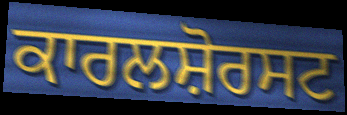
ਕਾਰਲਸ਼ੋਰਸਟ